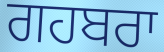
ਗਹਬਰਾ